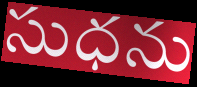
సుధను